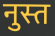
नुस्त